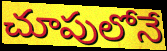
చూపులోనే